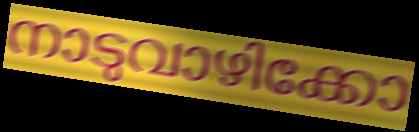
നാടുവാഴിക്കോ